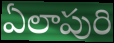
ఏలాపురి